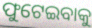
ଫୁଟେଇବାକୁ